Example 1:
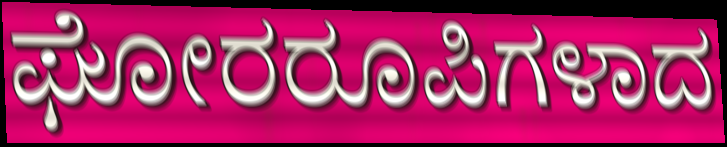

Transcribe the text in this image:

ಘೋರರೂಪಿಗಳಾದ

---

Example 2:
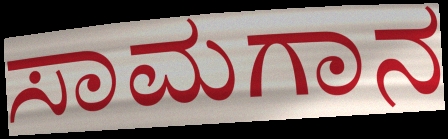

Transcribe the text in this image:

ಸಾಮಗಾನ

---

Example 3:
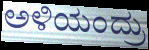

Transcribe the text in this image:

ಅಳಿಯಂದ್ರು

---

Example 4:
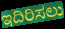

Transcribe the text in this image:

ಇದಿರಿಸಲು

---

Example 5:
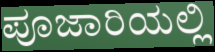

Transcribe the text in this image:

ಪೂಜಾರಿಯಲ್ಲಿ